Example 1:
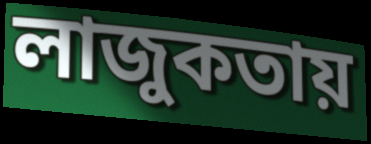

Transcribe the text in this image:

লাজুকতায়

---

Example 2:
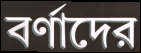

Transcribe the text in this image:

বর্ণাদের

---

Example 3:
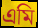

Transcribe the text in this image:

এমি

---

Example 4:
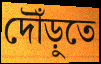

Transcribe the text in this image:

দৌঁড়ুতে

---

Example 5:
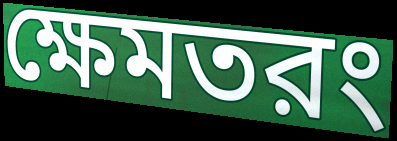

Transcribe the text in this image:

ক্ষেমতরং